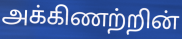
அக்கிணற்றின்